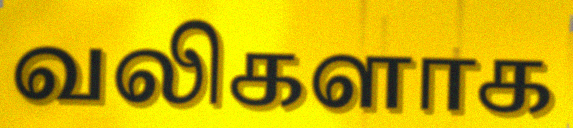
வலிகளாக